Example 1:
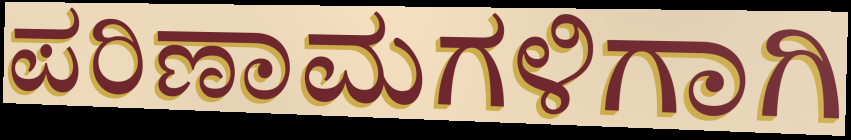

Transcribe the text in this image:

ಪರಿಣಾಮಗಳಿಗಾಗಿ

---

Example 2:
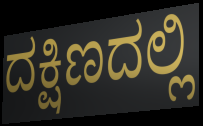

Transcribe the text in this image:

ದಕ್ಷಿಣದಲ್ಲಿ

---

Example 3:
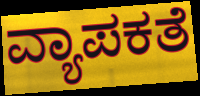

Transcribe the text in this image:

ವ್ಯಾಪಕತೆ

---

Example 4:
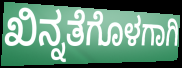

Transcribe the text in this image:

ಖಿನ್ನತೆಗೊಳಗಾಗಿ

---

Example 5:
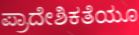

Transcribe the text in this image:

ಪ್ರಾದೇಶಿಕತೆಯೂ